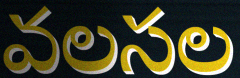
వలసల